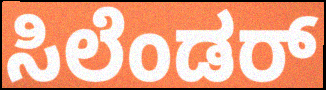
ಸಿಲೆಂಡರ್